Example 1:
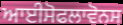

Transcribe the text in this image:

ਆਈਸੋਫਲਾਵੋਨਸ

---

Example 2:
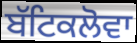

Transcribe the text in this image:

ਬੱਟਿਕਲੋਵਾ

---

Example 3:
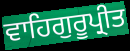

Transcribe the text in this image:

ਵਾਹਿਗੁਰੂਪ੍ਰੀਤ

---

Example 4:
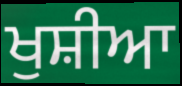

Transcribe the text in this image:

ਖੁਸ਼ੀਆ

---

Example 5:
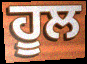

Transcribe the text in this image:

ਹੂਲ